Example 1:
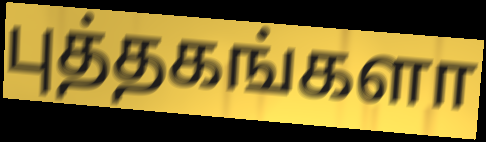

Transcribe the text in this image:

புத்தகங்களா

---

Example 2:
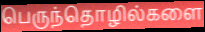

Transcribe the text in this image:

பெருந்தொழில்களை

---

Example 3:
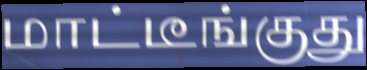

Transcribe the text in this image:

மாட்டீங்குது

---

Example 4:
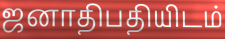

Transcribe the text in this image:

ஜனாதிபதியிடம்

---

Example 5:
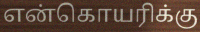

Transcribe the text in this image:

என்கொயரிக்கு